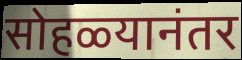
सोहळ्यानंतर